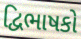
દ્વિભાષકો